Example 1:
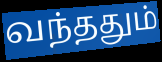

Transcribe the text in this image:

வந்ததும்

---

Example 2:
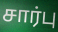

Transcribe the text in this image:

சார்பு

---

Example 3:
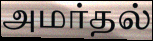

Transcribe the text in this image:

அமர்தல்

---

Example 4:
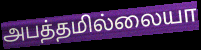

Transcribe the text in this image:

அபத்தமில்லையா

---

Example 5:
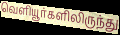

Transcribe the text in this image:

வெளியூர்களிலிருந்து